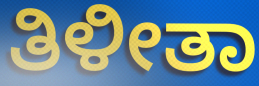
ತಿಳೀತಾ